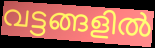
വട്ടങ്ങളിൽ